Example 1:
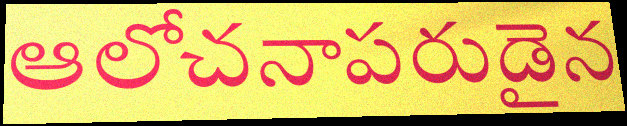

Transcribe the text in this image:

ఆలోచనాపరుడైన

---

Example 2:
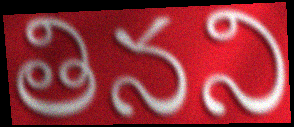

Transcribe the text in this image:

తినని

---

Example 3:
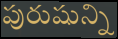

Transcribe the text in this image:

పురుషున్ని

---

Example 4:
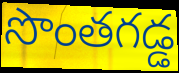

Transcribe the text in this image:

సొంతగడ్డ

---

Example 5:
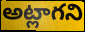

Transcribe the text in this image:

అట్లాగని